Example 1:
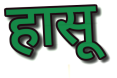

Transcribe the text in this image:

हासू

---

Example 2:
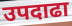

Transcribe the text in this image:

उपदाढा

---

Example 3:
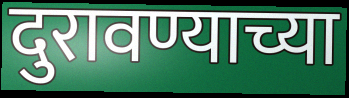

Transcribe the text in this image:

दुरावण्याच्या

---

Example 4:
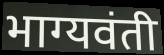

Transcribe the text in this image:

भाग्यवंती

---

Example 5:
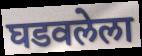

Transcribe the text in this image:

घडवलेला